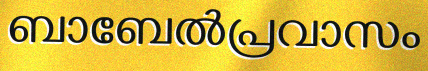
ബാബേൽപ്രവാസം